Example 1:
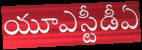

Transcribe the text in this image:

యూఎస్టీడీఏ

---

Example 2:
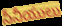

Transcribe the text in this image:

సీనీయులు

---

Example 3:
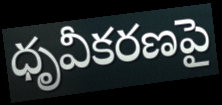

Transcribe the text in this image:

ధృవీకరణపై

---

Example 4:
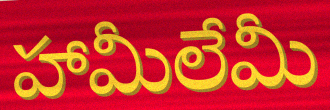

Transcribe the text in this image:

హామీలేమీ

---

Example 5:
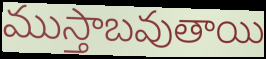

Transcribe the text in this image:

ముస్తాబవుతాయి